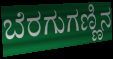
ಬೆರಗುಗಣ್ಣಿನ